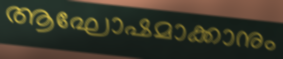
ആഘോഷമാക്കാനും